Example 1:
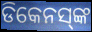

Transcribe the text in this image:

ଡିକେନସ୍‌ଙ୍କ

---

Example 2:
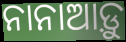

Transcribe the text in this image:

ନାନାଆଡ଼ୁ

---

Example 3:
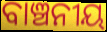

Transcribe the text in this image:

ବାଞ୍ଚନୀୟ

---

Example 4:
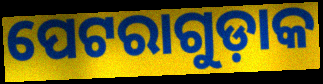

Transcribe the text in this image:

ପେଟରାଗୁଡ଼ାକ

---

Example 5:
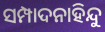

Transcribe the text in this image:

ସମ୍ପାଦନାହିନ୍ଦୁ